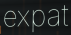
expat